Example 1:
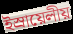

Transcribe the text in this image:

ইস্রায়েলীয়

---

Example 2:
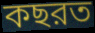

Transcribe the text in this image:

কছরত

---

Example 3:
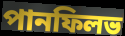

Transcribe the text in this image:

পানফিলভ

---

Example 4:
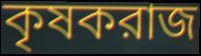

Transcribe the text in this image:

কৃষকরাজ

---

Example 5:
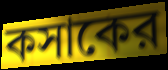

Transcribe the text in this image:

কসাকের